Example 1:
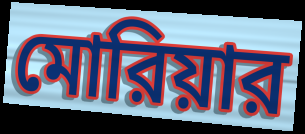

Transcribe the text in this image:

মোরিয়ার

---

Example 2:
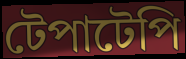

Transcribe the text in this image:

টেপাটেপি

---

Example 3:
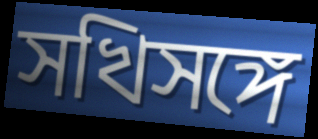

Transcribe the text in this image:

সখিসঙ্গে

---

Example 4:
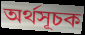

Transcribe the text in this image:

অর্থসূচক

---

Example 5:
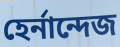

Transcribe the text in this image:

হের্নান্দেজ